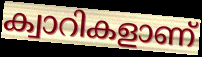
ക്വാറികളാണ്